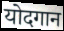
योदगान